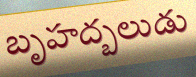
బృహద్బలుడు